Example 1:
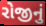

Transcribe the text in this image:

રોજીનું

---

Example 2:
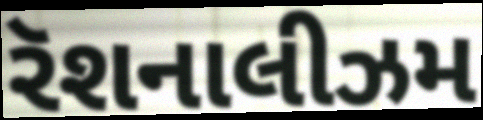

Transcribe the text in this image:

રૅશનાલીઝમ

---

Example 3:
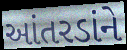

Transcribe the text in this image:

આંતરડાંને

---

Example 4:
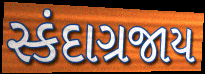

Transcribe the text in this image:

સ્કંદાગ્રજાય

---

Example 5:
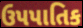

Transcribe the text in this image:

ઉપપાતિક